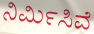
ನಿರ್ಮಿಸಿವೆ